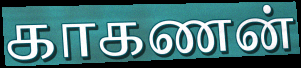
காகணன்